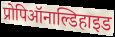
प्रोपिऑनाल्डिहाइड